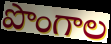
పొంగాల